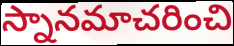
స్నానమాచరించి